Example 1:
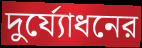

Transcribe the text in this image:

দুর্য্যোধনের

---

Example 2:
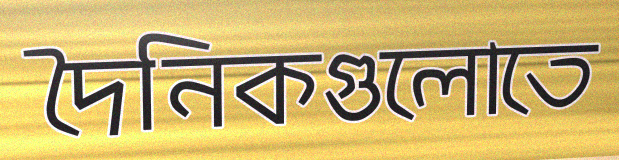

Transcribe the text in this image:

দৈনিকগুলোতে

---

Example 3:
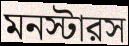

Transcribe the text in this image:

মনস্টারস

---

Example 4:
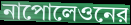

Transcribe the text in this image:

নাপোলেওনের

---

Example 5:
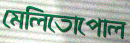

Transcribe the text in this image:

মেলিতোপোল